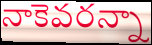
నాకెవరన్నా